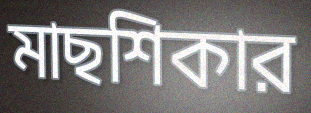
মাছশিকার